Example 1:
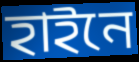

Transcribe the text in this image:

হাইনে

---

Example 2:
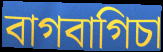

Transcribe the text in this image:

বাগবাগিচা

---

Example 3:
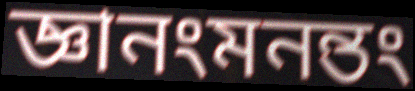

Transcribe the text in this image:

জ্ঞানংমনন্তং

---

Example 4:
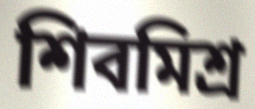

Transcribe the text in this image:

শিবমিশ্র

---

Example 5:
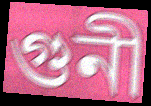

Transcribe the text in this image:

গুনী